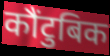
कौंटुबिक